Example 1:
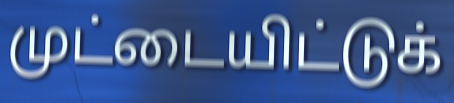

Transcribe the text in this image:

முட்டையிட்டுக்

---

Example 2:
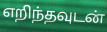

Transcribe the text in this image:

எறிந்தவுடன்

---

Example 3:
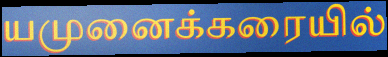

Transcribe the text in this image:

யமுனைக்கரையில்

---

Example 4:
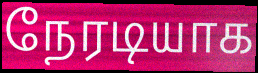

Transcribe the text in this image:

நேரடியாக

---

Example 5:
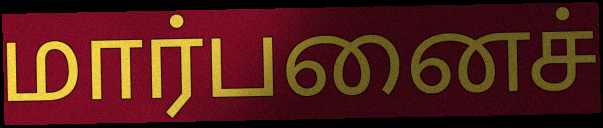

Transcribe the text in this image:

மார்பனைச்